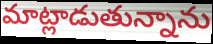
మాట్లాడుతున్నాను